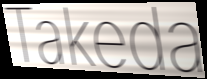
Takeda